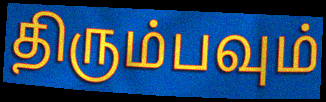
திரும்பவும்